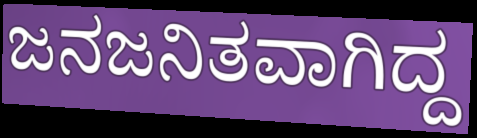
ಜನಜನಿತವಾಗಿದ್ದ